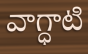
వాగ్ధాటి